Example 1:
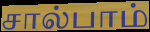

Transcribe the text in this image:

சால்பாம்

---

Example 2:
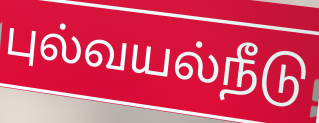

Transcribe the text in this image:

புல்வயல்நீடு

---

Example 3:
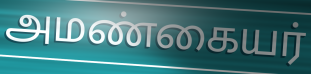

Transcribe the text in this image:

அமண்கையர்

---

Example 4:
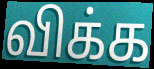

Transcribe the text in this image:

விக்க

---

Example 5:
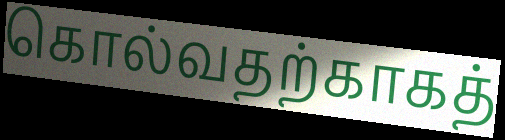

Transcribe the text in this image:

கொல்வதற்காகத்